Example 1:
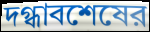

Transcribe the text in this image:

দগ্ধাবশেষের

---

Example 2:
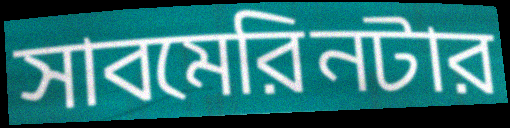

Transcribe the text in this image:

সাবমেরিনটার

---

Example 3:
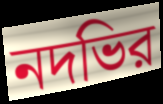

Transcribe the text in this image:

নদভির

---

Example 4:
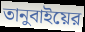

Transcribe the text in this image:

তানুবাইয়ের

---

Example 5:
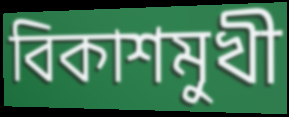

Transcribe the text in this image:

বিকাশমুখী